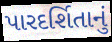
પારદર્શિતાનું